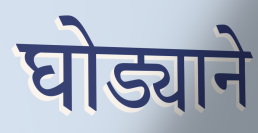
घोड्याने